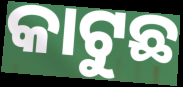
କାଟୁଛ